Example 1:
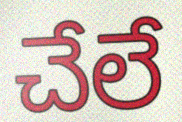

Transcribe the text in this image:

చేలే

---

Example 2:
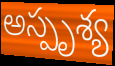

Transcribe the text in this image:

అస్పృశ్య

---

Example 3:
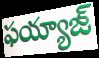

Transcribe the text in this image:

ఫయ్యాజ్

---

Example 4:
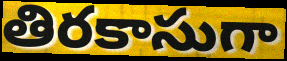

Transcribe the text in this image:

తిరకాసుగా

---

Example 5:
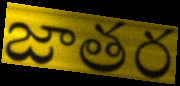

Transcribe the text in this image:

జాతర